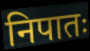
निपातः